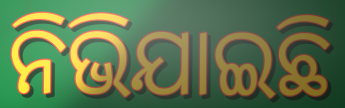
ନିଭିଯାଇଛି